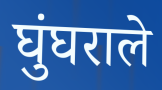
घुंघराले